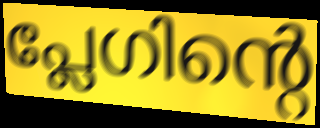
പ്ലേഗിന്റെ